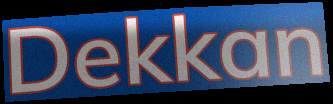
Dekkan